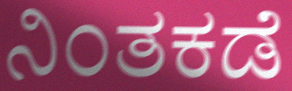
ನಿಂತಕಡೆ